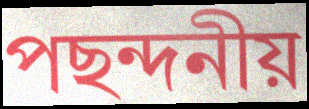
পছন্দনীয়